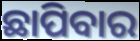
ଛାପିବାର